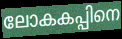
ലോകകപ്പിനെ